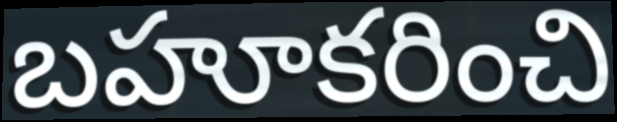
బహూకరించి